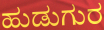
ಹುಡುಗುರ